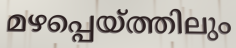
മഴപ്പെയ്ത്തിലും